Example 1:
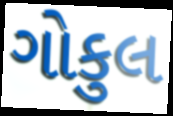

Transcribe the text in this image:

ગોકુલ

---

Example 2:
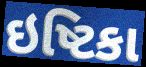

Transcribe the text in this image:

ઇષ્ટિકા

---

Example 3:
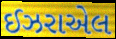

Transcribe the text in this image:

ઈઝરાએલ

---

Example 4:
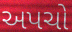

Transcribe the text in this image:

અપચો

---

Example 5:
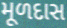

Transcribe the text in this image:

મૂળદાસ